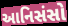
આનિસંસો